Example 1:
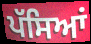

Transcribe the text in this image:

ਪੱਸਿਆਂ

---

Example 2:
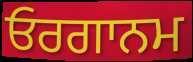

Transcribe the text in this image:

ਓਰਗਾਨਮ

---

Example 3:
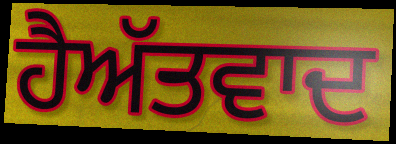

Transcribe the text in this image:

ਹੈਅੱਤਵਾਦ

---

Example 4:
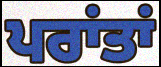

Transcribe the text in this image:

ਪਰਾਂਤਾਂ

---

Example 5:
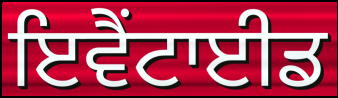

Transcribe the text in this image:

ਇਵੈਂਟਾਈਡ